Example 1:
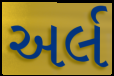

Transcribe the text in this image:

અર્લ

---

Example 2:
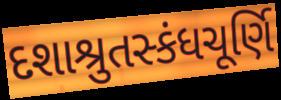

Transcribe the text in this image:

દશાશ્રુતસ્કંધચૂર્ણિ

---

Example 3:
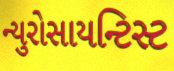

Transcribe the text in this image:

ન્યુરોસાયન્ટિસ્ટ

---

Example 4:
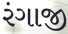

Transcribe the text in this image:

રંગાજી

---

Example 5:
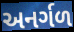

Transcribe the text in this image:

અનર્ગળ